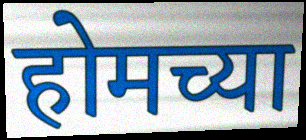
होमच्या